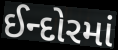
ઈન્દોરમાં